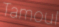
Tamoul